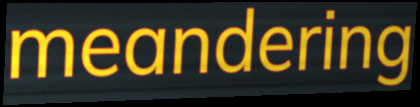
meandering